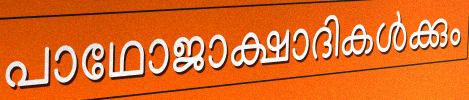
പാഥോജാക്ഷാദികൾക്കും